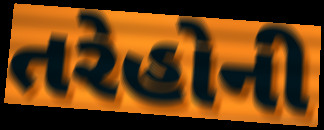
તરેહોની